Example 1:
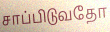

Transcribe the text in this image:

சாப்பிடுவதோ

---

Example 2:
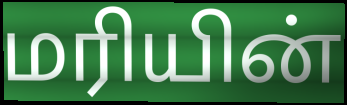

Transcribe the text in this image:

மரியின்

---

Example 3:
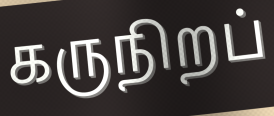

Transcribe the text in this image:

கருநிறப்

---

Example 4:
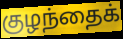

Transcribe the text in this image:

குழந்தைக்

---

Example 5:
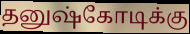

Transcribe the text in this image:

தனுஷ்கோடிக்கு